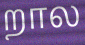
றால